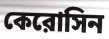
কেরোসিন